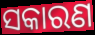
ସକାରଣ